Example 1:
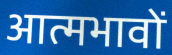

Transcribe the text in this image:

आत्मभावों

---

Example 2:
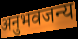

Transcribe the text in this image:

अनुभवजन्य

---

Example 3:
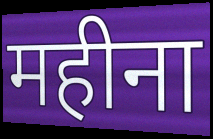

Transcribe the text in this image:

महीना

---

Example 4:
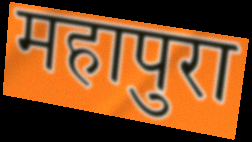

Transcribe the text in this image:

महापुरा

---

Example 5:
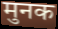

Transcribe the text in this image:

मुनक